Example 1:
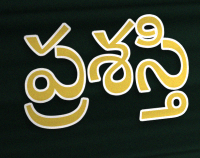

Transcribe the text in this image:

ప్రశస్తి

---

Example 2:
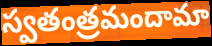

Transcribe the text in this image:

స్వతంత్రమందామా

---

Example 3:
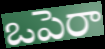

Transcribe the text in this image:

ఒపెరా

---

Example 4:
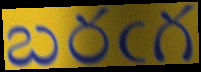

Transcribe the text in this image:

బరఁగ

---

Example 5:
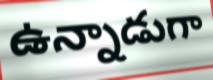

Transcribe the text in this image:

ఉన్నాడుగా